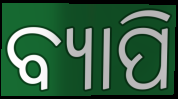
ବ୍ୟାପି